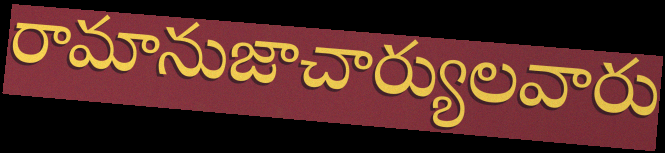
రామానుజాచార్యులవారు